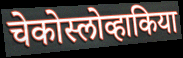
चेकोस्लोव्हाकिया